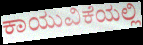
ಕಾಯುವಿಕೆಯಲ್ಲಿ